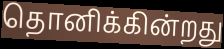
தொனிக்கின்றது